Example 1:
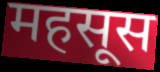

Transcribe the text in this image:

महसूस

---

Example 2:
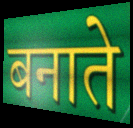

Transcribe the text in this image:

बनाते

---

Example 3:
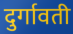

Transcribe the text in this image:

दुर्गावती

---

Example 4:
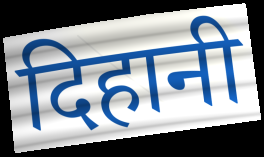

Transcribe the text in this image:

दिहानी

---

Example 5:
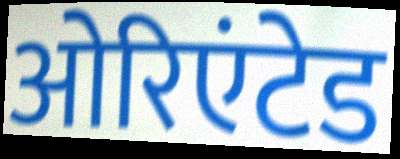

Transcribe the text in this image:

ओरिएंटेड